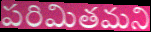
పరిమితమని